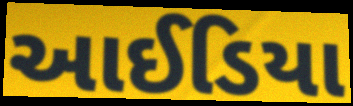
આઈડિયા